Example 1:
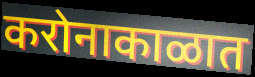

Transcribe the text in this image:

करोनाकाळात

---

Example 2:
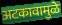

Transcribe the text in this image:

अटकावामुळे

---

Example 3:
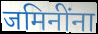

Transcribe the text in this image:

जमिनींना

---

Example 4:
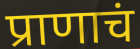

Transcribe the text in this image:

प्राणाचं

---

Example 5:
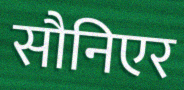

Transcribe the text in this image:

सौनिएर